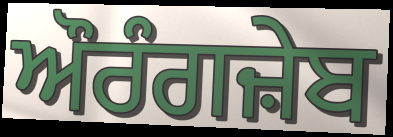
ਔਰੰਗਜ਼ੇਬ